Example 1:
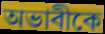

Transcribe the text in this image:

অভাবীকে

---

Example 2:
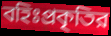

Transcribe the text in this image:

বহিঃপ্রকৃতির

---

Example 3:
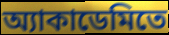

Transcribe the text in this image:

অ্যাকাডেমিতে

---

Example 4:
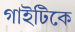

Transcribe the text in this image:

গাইটিকে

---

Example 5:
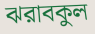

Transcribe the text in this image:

ঝরাবকুল